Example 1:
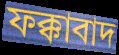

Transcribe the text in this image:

ফক্কাবাদ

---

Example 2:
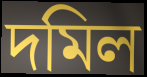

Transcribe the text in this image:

দমিল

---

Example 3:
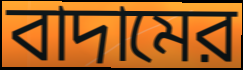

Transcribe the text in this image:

বাদামের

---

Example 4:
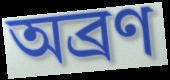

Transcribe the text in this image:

অব্রণ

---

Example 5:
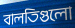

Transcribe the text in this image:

বালতিগুলো